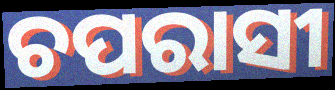
ଚପରାସୀ